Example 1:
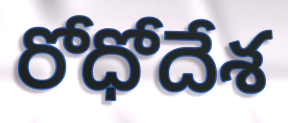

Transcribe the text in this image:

రోధోదేశ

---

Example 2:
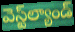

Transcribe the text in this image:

వెస్ట్‌ల్యాండ్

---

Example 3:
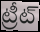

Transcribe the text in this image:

ట్రీట్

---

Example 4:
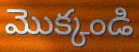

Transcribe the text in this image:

మొక్కండి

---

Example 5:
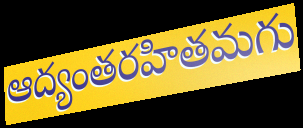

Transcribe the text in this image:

ఆద్యంతరహితమగు